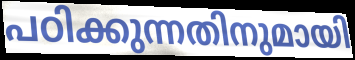
പഠിക്കുന്നതിനുമായി